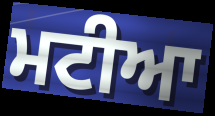
ਮਟੀਆ